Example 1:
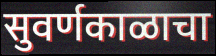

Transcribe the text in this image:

सुवर्णकाळाचा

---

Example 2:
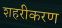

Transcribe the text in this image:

शहरीकरण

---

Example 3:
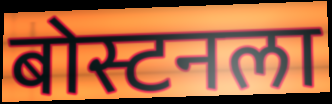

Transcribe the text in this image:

बोस्टनला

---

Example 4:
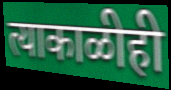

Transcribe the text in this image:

त्याकाळीही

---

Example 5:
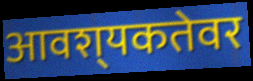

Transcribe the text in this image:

आवश्यकतेवर